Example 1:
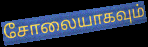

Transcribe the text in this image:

சோலையாகவும்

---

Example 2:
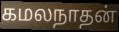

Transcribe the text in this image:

கமலநாதன்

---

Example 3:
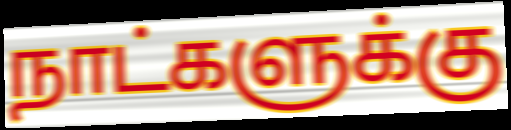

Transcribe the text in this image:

நாட்களுக்கு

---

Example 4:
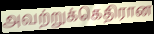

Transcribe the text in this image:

அவற்றுக்கெதிரான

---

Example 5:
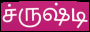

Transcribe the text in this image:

ச்ருஷ்டி